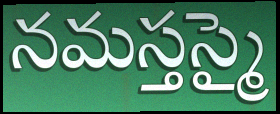
నమస్తస్మై